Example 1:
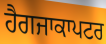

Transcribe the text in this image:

ਹੈਗਜਾਕਾਪਟਰ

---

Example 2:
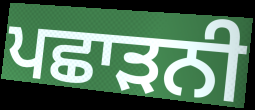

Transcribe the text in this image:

ਪਛਾੜਨੀ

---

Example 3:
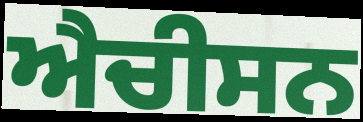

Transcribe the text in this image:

ਐਚੀਸਨ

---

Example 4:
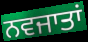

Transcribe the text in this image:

ਨਵਜਾਤਾਂ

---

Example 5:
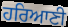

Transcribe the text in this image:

ਹਰਿਆਣੀ